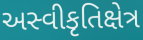
અસ્વીકૃતિક્ષેત્ર